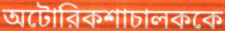
অটোরিকশাচালককে